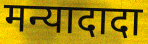
मन्यादादा